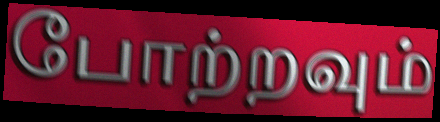
போற்றவும்